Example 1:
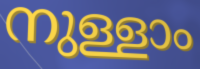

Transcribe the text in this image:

നുള്ളാം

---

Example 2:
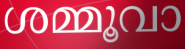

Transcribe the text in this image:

ശമ്മൂവാ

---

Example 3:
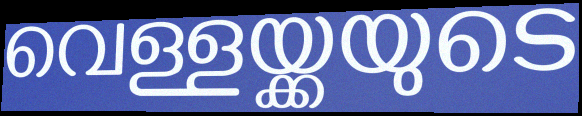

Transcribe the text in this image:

വെള്ളയ്ക്കയുടെ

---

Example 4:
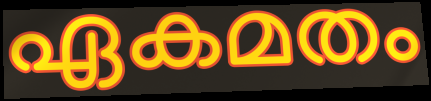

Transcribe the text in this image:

ഏകമതം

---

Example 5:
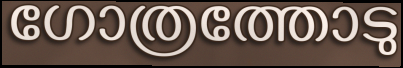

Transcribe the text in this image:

ഗോത്രത്തോടു